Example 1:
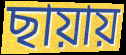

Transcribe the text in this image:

ছায়ায়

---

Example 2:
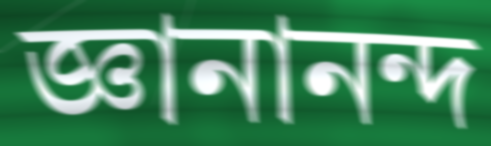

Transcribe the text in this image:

জ্ঞানানন্দ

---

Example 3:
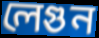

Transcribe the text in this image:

লেগুন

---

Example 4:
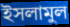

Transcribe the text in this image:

ইসলামুল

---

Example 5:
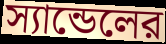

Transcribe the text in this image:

স্যান্ডেলের